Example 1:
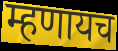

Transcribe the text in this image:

म्हणायच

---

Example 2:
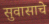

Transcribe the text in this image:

सुवासाचे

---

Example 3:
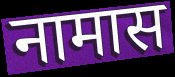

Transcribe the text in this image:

नामास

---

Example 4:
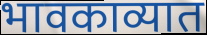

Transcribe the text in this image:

भावकाव्यात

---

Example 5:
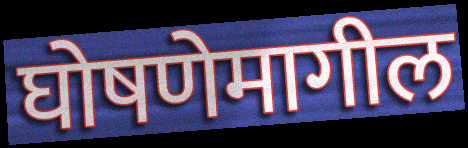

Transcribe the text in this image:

घोषणेमागील